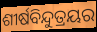
ଶୀର୍ଷବିନ୍ଦୁତ୍ରୟର